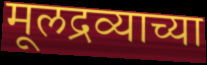
मूलद्रव्याच्या